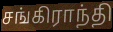
சங்கிராந்தி